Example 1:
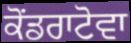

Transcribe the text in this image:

ਕੋਂਡਰਾਟੋਵਾ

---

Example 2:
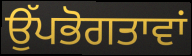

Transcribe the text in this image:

ਉੱਪਭੋਗਤਾਵਾਂ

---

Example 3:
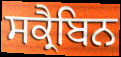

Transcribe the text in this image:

ਸਕ੍ਰੈਬਿਨ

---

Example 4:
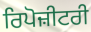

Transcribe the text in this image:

ਰਿਪੋਜ਼ੀਟਰੀ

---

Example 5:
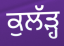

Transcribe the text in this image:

ਕੁਲੱੜ੍ਹ